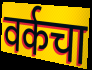
वर्कचा